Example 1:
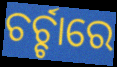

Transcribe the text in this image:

ଚର୍ଚ୍ଚାରେ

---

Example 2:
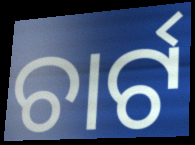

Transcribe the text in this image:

ଚାର୍ଟ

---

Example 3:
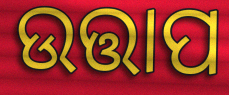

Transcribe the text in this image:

ଉତ୍ତାପ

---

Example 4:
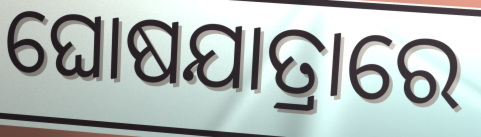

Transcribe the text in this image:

ଘୋଷଯାତ୍ରାରେ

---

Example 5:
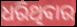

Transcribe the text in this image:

ଧରିଥିବାର